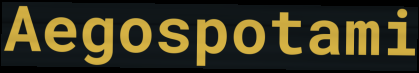
Aegospotami